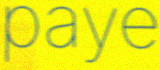
paye